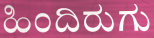
ಹಿಂದಿರುಗು